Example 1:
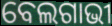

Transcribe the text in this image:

ବେଲଗାଭୀ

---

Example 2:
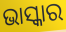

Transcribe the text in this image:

ଭାସ୍କାର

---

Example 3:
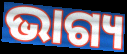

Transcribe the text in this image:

ଭାଗ୍ୟ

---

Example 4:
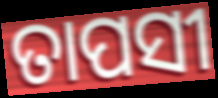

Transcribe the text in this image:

ତାପସୀ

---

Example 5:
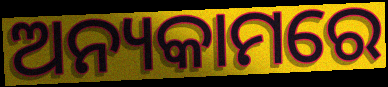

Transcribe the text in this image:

ଅନ୍ୟକାମରେ